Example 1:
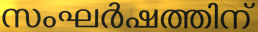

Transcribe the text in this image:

സംഘർഷത്തിന്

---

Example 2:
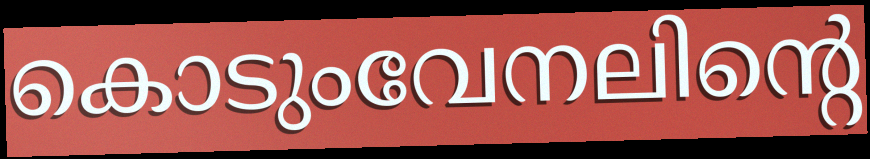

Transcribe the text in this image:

കൊടുംവേനലിന്റെ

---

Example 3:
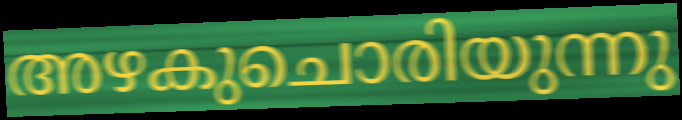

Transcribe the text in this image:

അഴകുചൊരിയുന്നു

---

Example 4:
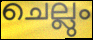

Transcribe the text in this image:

ചെല്ലും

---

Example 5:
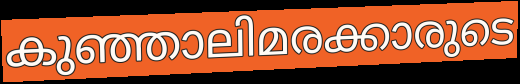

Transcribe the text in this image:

കുഞ്ഞാലിമരക്കാരുടെ